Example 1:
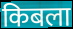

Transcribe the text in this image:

किबला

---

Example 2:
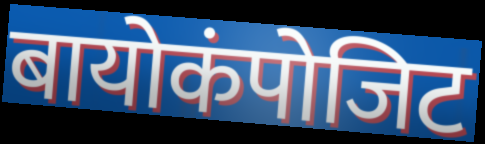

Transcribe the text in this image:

बायोकंपोजिट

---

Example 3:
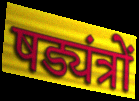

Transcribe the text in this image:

षड्यंत्रों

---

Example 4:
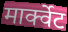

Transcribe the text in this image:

मार्क्वेट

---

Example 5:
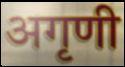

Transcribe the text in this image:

अगृणी